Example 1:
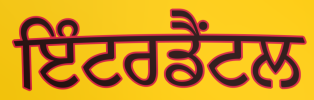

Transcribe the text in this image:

ਇੰਟਰਡੈਂਟਲ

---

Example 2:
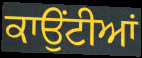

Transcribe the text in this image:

ਕਾਉਂਟੀਆਂ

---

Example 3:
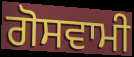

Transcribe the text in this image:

ਗੋਸਵਾਮੀ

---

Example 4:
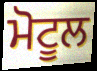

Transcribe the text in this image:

ਮੋਟੂਲ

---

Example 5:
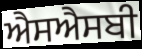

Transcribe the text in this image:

ਐਸਐਸਬੀ